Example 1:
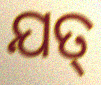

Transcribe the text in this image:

ଯତ୍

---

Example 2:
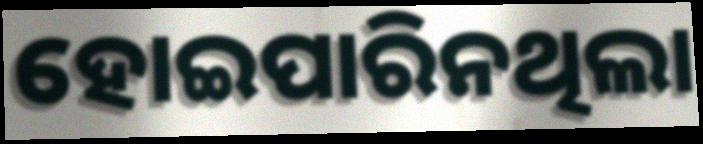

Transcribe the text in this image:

ହୋଇପାରିନଥିଲା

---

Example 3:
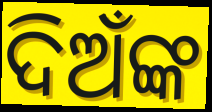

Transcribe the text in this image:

ଦିଅଁଙ୍କ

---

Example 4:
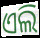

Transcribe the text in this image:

ଏଲି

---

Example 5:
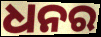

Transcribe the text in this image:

ଧନର